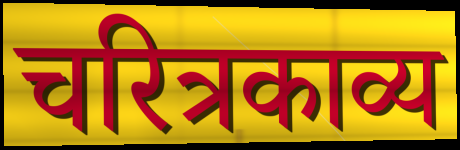
चरित्रकाव्य